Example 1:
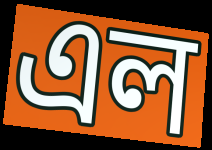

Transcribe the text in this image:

এল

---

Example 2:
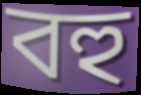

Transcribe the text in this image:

বহু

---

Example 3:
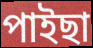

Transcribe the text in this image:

পাইছা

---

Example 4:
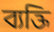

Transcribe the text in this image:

ব্যক্তি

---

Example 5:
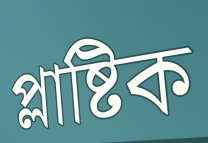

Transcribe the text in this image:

প্লাষ্টিক